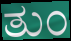
ತುಂ